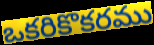
ఒకరికొకరము